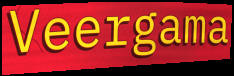
Veergama